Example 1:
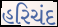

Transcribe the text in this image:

હરિચંદ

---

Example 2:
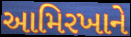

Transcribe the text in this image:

આમિરખાને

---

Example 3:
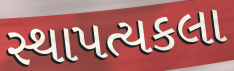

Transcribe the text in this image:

સ્થાપત્યકલા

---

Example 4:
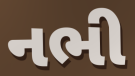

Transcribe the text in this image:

નભી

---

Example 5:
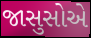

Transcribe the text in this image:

જાસુસોએ